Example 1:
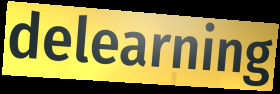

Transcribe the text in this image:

delearning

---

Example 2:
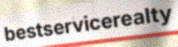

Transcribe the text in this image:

bestservicerealty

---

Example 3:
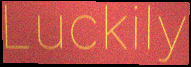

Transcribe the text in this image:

Luckily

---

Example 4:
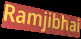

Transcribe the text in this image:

Ramjibhai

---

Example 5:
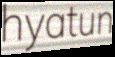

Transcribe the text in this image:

hyatun